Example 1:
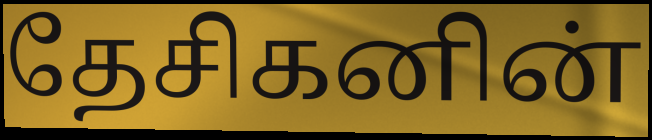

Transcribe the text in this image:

தேசிகனின்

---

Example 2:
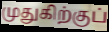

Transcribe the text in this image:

முதுகிற்குப்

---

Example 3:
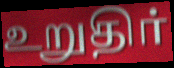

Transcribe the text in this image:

உறுதிர்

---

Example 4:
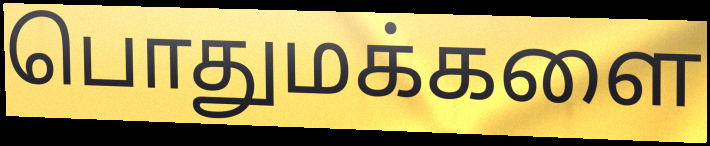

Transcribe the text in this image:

பொதுமக்களை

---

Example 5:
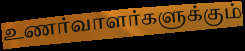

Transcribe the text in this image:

உணர்வாளர்களுக்கும்